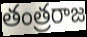
తంత్రరాజ